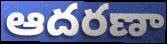
ఆదరణా